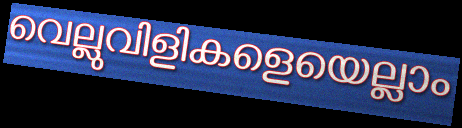
വെല്ലുവിളികളെയെല്ലാം